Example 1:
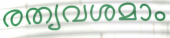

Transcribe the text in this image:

രത്യവശമാം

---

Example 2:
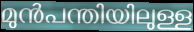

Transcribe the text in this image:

മുൻപന്തിയിലുള്ള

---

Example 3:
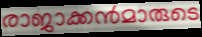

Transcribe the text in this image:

രാജാക്കൻമാരുടെ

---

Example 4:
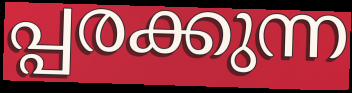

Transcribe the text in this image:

പ്പരക്കുന്ന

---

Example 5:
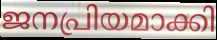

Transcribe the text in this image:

ജനപ്രിയമാക്കി